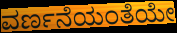
ವರ್ಣನೆಯಂತೆಯೇ